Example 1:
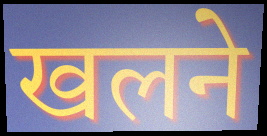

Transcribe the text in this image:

खलने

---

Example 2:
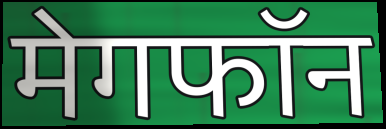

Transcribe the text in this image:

मेगफॉन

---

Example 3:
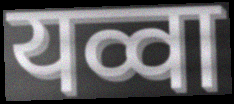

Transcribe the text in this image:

यव्वा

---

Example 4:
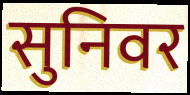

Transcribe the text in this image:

सुनिवर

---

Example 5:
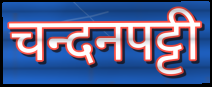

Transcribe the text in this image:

चन्दनपट्टी